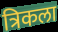
त्रिकला